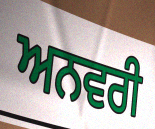
ਅਨਵਰੀ